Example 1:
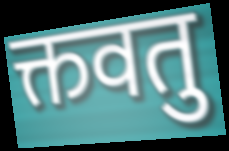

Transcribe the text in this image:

क्तवतु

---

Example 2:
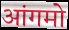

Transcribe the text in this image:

आंगमो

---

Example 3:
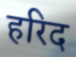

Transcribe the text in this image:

हरिद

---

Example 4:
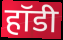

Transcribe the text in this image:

हॉडी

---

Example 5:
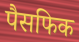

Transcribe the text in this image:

पैसफिक